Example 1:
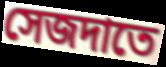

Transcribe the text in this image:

সেজদাতে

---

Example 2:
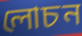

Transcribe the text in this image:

লোচন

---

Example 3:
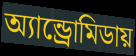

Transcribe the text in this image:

অ্যান্ড্রোমিডায়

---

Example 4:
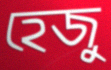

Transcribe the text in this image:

হেজু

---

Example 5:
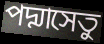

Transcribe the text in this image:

পদ্মাসেতু